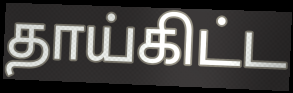
தாய்கிட்ட